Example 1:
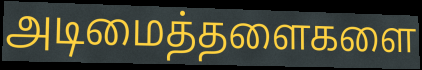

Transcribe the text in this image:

அடிமைத்தளைகளை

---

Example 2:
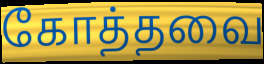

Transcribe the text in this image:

கோத்தவை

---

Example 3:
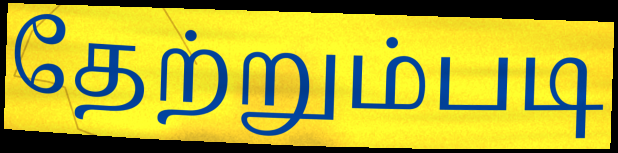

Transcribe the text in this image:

தேற்றும்படி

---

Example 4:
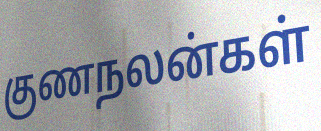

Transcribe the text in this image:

குணநலன்கள்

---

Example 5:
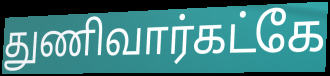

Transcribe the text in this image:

துணிவார்கட்கே